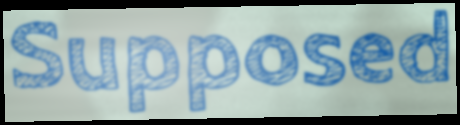
Supposed